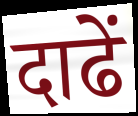
दाढें